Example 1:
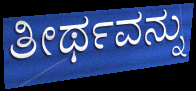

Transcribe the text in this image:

ತೀರ್ಥವನ್ನು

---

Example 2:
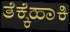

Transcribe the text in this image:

ತೆಕ್ಕೆಹಾಕಿ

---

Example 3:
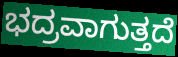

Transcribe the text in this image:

ಭದ್ರವಾಗುತ್ತದೆ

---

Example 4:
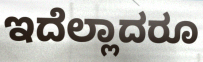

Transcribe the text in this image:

ಇದೆಲ್ಲಾದರೂ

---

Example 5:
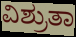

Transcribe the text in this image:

ವಿಶ್ರುತಾ